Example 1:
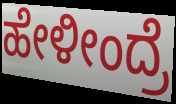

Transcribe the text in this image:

ಹೇಳೀಂದ್ರೆ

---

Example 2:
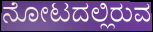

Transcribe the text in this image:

ನೋಟದಲ್ಲಿರುವ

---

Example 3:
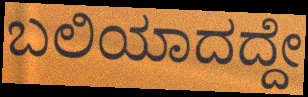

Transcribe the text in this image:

ಬಲಿಯಾದದ್ದೇ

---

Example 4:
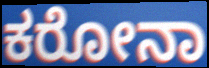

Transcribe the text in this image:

ಕರೋನಾ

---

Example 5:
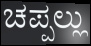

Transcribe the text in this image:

ಚಪ್ಪಲ್ಲು